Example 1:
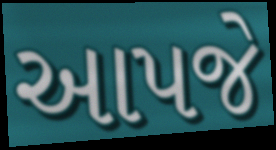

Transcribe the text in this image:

આપજે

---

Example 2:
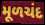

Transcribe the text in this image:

મૂળચંદ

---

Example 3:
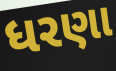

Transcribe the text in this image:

ધરણા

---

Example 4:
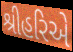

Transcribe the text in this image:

શ્રીહરિએ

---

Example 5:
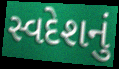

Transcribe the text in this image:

સ્વદેશનું